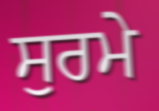
ਸੁਰਮੇ